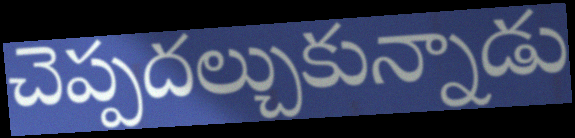
చెప్పదల్చుకున్నాడు